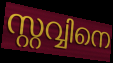
സ്റ്റവ്വിനെ